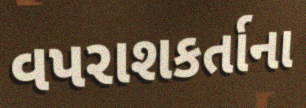
વપરાશકર્તાના